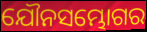
ଯୌନସମ୍ଭୋଗର